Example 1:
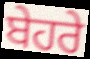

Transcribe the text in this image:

ਬੇਹਰੇ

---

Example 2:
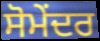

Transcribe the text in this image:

ਸੋਮੇਂਦਰ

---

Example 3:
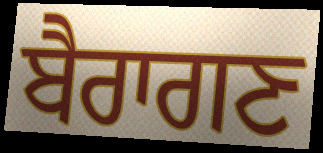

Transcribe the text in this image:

ਬੈਰਾਗਣ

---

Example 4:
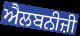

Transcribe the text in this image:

ਐਲਬਨੀਜ਼ੀ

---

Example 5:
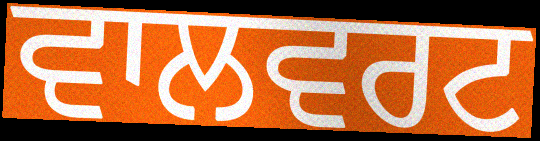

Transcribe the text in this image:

ਵਾਲਵਰਟ